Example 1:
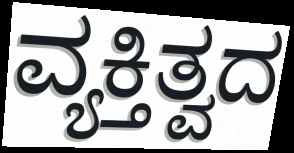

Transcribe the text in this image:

ವ್ಯಕ್ತಿತ್ವದ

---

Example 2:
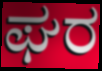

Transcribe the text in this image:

ಘರ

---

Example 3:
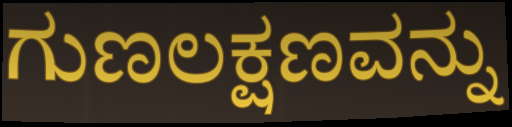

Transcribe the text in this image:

ಗುಣಲಕ್ಷಣವನ್ನು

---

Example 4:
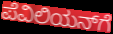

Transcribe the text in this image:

ಪೆವಿಲಿಯನ್‌ಗೆ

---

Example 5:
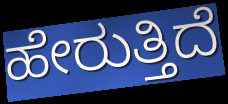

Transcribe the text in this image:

ಹೇರುತ್ತಿದೆ